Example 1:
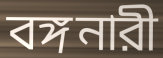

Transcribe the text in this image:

বঙ্গনারী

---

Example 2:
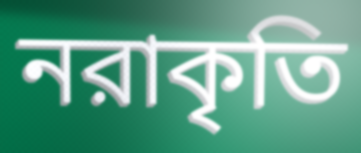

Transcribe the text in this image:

নরাকৃতি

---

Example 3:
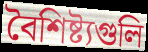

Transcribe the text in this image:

বৈশিষ্ট্যগুলি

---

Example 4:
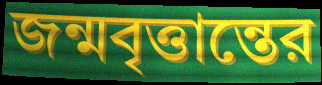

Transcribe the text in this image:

জন্মবৃত্তান্তের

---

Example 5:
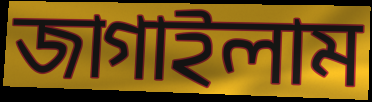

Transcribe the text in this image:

জাগাইলাম